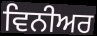
ਵਿਨੀਅਰ